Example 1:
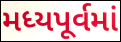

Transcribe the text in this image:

મધ્યપૂર્વમાં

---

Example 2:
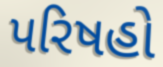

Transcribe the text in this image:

પરિષહો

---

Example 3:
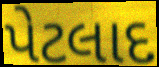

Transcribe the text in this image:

પેટલાદ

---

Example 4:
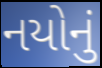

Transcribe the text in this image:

નયોનું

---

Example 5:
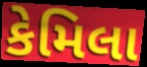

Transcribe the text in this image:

કેમિલા